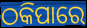
ଠକିପାରେ